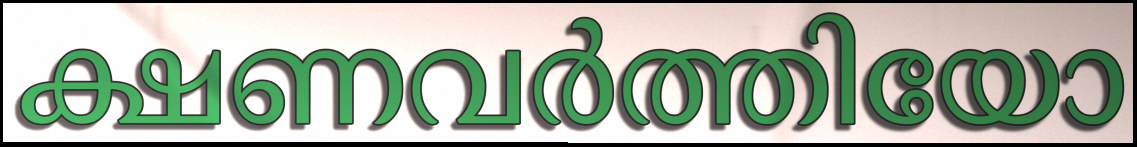
ക്ഷണവർത്തിയോ